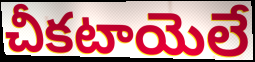
చీకటాయెలే